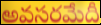
అవసరమేదీ